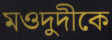
মওদুদীকে